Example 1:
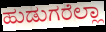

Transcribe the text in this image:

ಹುಡುಗರೆಲ್ಲಾ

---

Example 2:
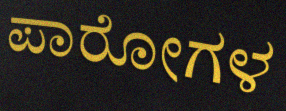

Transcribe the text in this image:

ಪಾರೋಗಳ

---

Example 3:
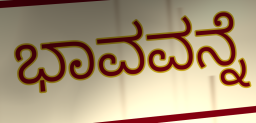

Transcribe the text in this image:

ಭಾವವನ್ನೆ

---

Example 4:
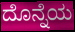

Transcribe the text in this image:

ದೊನ್ನೆಯ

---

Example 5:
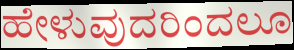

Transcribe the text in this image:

ಹೇಳುವುದರಿಂದಲೂ